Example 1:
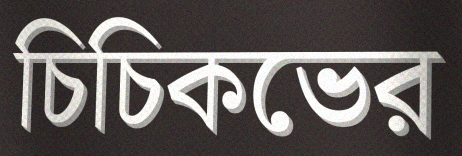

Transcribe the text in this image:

চিচিকভের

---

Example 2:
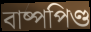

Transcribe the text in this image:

বাষ্পপিণ্ড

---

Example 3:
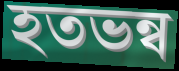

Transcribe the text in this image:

হতভন্ব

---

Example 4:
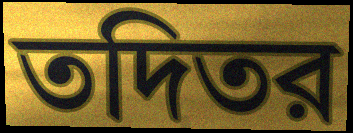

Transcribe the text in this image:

তদিতর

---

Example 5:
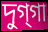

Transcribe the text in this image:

দুগ্‌গা